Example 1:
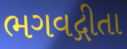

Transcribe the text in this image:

ભગવદ્ગીતા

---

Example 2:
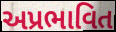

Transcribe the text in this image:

અપ્રભાવિત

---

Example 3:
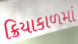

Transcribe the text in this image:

ક્રિયાકાળમાં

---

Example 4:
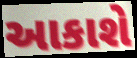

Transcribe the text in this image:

આકાશે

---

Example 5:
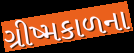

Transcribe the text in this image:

ગ્રીષ્મકાળના